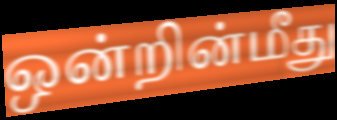
ஒன்றின்மீது